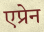
एप्रेन